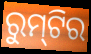
ରୁମ୍‌ଟିର